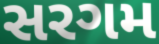
સરગમ